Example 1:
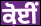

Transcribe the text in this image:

ਕੋਈਂ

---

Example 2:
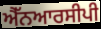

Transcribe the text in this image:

ਐੱਨਆਰਸੀਪੀ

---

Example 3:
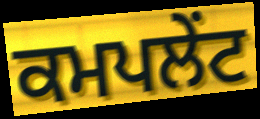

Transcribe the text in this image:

ਕਮਪਲੇਂਟ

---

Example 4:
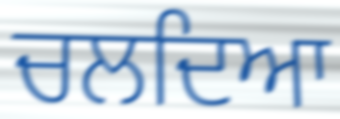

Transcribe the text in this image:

ਚਲਦਿਆ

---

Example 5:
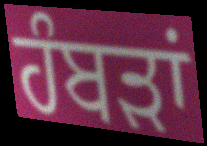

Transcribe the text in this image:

ਹੰਬੜਾਂ